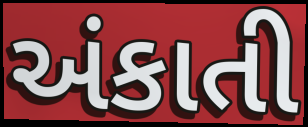
અંકાતી